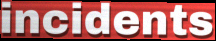
incidents